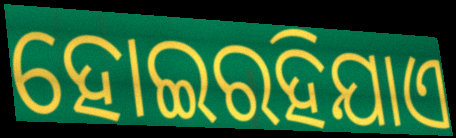
ହୋଇରହିଯାଏ